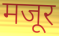
मजूर